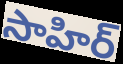
సాహిర్